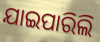
ଯାଇପାରିଲି